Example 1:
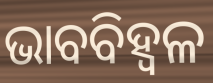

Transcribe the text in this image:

ଭାବବିହ୍ବଳ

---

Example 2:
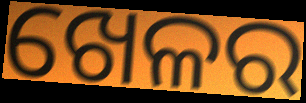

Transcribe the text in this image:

ଖେଳର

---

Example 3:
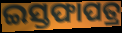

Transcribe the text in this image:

ଇସ୍ତଫାପତ୍ର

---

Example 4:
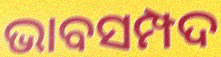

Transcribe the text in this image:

ଭାବସମ୍ପଦ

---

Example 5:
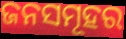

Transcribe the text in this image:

ଜନସମୂହର